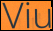
Viu